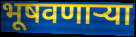
भूषवणाऱ्या